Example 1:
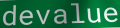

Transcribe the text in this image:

devalue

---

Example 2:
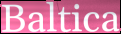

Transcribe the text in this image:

Baltica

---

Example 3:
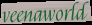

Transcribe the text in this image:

veenaworld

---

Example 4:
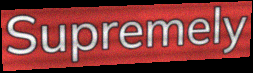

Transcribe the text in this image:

Supremely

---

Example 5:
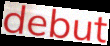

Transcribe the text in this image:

debut